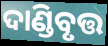
ଦାଣ୍ଡିବୃତ୍ତ